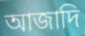
আজাদি